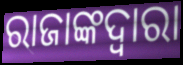
ରାଜାଙ୍କଦ୍ଵାରା